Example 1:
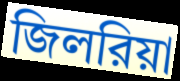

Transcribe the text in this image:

জিলরিয়া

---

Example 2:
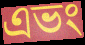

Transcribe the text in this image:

এভং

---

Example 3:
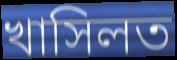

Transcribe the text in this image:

খাসিলত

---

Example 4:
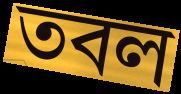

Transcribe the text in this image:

তবল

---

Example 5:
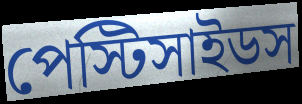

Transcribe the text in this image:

পেস্টিসাইডস